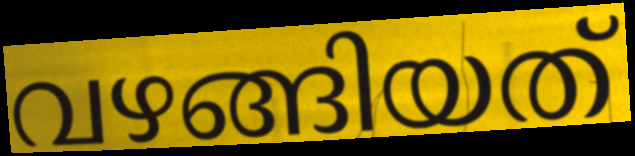
വഴങ്ങിയത്